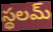
స్థలమ్